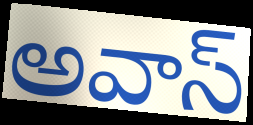
అవాస్